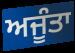
ਅਜੂੰਤਾ